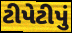
ટીપેટીપું